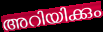
അറിയിക്കും